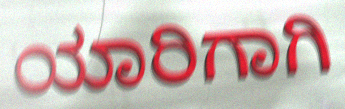
ಯಾರಿಗಾಗಿ